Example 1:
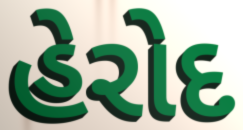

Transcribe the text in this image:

હેરોદ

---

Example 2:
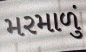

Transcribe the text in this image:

મરમાળું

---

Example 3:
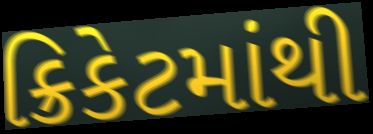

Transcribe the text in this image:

ક્રિકેટમાંથી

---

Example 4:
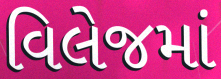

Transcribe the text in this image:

વિલેજમાં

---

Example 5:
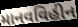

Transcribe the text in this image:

માનવવિહીન